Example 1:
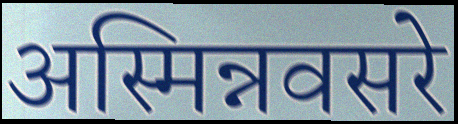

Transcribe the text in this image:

अस्मिन्नवसरे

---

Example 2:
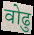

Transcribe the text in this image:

वोढु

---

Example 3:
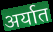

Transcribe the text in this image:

अर्यात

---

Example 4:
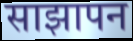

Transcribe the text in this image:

साझापन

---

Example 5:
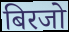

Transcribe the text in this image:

बिरजो